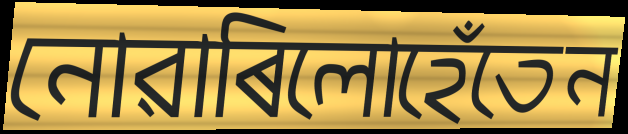
নোৱাৰিলোহেঁতেন